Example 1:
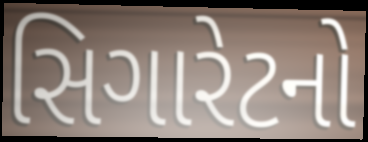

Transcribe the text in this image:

સિગારેટનો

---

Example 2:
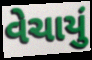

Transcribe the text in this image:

વેચાયું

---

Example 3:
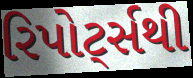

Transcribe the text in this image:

રિપોર્ટ્સથી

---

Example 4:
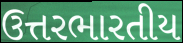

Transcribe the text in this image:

ઉત્તરભારતીય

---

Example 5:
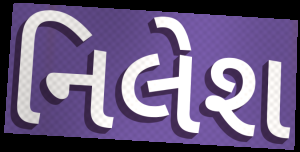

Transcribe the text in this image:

નિલેશ